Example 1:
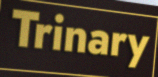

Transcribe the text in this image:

Trinary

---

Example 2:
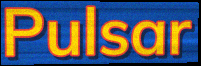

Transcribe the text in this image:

Pulsar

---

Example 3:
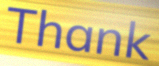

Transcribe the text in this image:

Thank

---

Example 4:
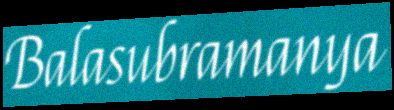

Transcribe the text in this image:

Balasubramanya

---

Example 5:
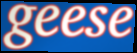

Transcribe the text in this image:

geese